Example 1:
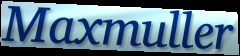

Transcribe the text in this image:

Maxmuller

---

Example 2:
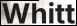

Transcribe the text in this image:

Whitt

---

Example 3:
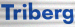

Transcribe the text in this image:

Triberg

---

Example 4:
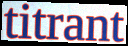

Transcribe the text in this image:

titrant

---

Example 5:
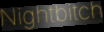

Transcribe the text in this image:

Nightbitch